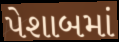
પેશાબમાં